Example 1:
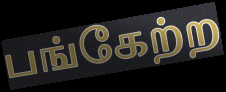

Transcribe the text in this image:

பங்கேற்ற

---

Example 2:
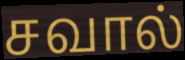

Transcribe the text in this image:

சவால்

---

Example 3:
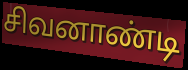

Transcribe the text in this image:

சிவனாண்டி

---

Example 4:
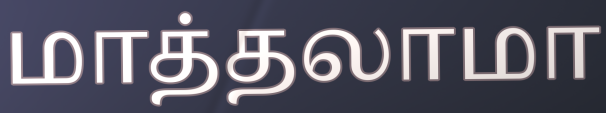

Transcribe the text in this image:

மாத்தலாமா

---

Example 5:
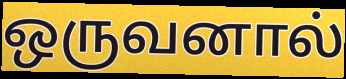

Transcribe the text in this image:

ஒருவனால்